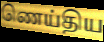
ணெய்திய